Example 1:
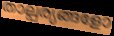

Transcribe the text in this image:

താല്പര്യങ്ങളോ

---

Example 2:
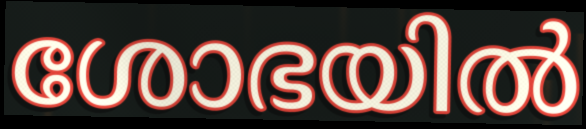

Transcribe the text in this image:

ശോഭയിൽ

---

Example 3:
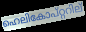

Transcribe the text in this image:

ഹെലികോപ്റ്ററില്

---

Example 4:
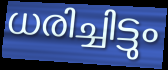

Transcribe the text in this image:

ധരിച്ചിട്ടും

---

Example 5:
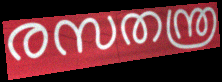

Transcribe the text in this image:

രസതന്ത്ര